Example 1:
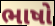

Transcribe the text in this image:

ભાષો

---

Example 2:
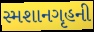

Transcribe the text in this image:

સ્મશાનગૃહની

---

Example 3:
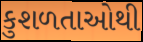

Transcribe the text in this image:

કુશળતાઓથી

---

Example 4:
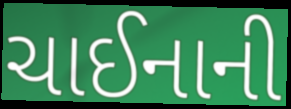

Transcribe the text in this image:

ચાઈનાની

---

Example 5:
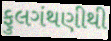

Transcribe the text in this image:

ફુલગંથણીથી